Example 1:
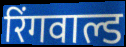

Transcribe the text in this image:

रिंगवाल्ड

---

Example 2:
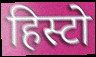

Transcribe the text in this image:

हिस्टो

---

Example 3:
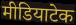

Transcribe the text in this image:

मीडियाटेक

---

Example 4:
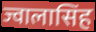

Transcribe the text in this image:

ज्वालासिंह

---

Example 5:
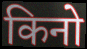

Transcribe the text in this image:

किनो